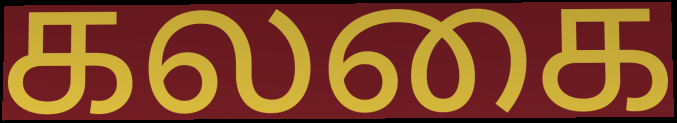
கலகை